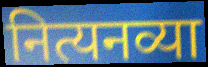
नित्यनव्या